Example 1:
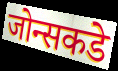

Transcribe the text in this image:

जोन्सकडे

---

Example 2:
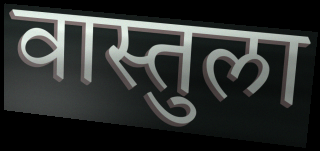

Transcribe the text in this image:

वास्तुला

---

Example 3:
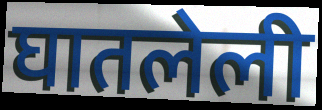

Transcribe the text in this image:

घातलेली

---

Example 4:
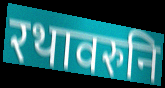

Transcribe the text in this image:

रथावरुनि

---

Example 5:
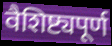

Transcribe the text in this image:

वैशिष्ट्यपूर्ण